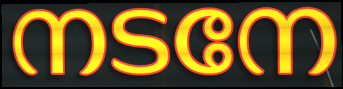
നടനേ